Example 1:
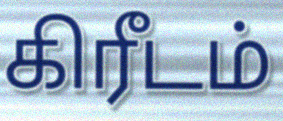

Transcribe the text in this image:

கிரீடம்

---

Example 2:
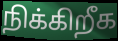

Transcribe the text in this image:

நிக்கிறீக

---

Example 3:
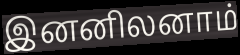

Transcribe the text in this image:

இனனிலனாம்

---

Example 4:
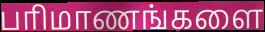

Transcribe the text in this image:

பரிமாணங்களை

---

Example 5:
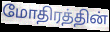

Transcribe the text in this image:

மோதிரத்தின்